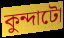
কুন্দাটো